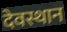
देवस्थान